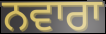
ਨਵਾਰਾ